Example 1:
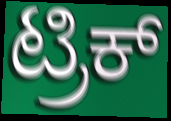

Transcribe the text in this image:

ಟ್ರಿಕ್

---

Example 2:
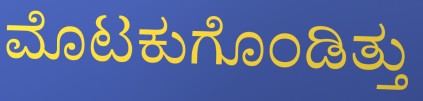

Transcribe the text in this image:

ಮೊಟಕುಗೊಂಡಿತ್ತು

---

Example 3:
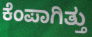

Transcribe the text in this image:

ಕೆಂಪಾಗಿತ್ತು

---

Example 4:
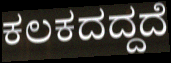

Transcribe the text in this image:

ಕಲಕದದ್ದದೆ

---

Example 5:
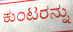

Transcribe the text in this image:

ಕುಂಟರನ್ನು